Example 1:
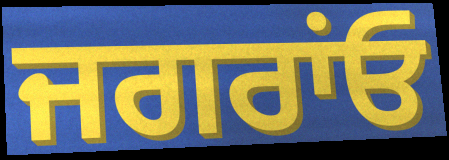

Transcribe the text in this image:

ਜਗਰਾਂਓ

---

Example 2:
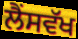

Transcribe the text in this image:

ਲੈਂਸਵੱਖ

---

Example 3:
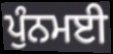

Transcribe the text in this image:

ਪੁੰਨਮਈ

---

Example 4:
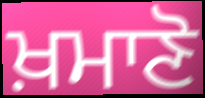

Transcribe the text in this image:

ਖ਼ਮਾਣੋ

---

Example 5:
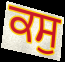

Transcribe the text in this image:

ਕਸੁ